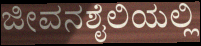
ಜೀವನಶೈಲಿಯಲ್ಲಿ